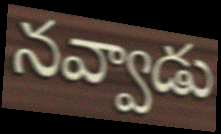
నవ్వాడు